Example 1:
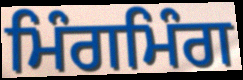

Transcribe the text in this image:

ਮਿੰਗਮਿੰਗ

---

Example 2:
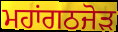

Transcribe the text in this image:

ਮਹਾਂਗਠਜੋਡ਼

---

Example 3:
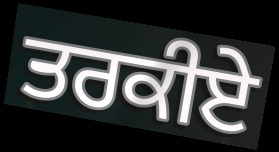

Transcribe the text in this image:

ਤਰਕੀਏ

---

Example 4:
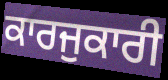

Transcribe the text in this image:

ਕਾਰਜੁਕਾਰੀ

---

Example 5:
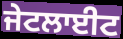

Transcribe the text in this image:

ਜੇਟਲਾਈਟ